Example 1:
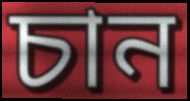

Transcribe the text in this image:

চান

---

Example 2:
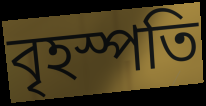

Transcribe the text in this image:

বৃহস্পতি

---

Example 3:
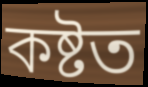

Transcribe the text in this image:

কষ্টত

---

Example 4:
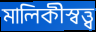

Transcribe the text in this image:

মালিকীস্বত্ত্ব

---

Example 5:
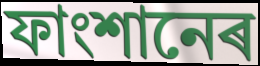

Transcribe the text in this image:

ফাংশানেৰ